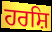
ਹਰਸ਼ਿ